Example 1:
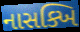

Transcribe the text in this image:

નાસક્ખિ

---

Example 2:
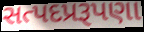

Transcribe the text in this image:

સત્પદપ્રરૂપણા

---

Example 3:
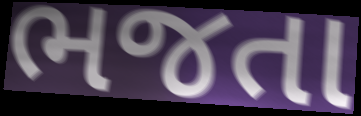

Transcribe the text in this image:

ભજતા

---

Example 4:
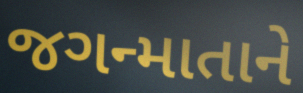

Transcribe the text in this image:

જગન્માતાને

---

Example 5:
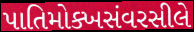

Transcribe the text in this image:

પાતિમોક્ખસંવરસીલે